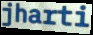
jharti